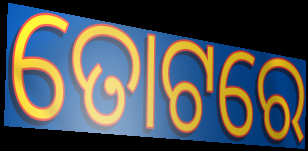
ତୋଟରେ